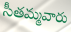
సీతమ్మవారు